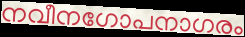
നവീനഗോപനാഗരം